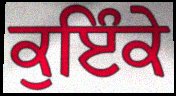
ਕੁਇੰਕੇ